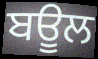
ਬਊਲ